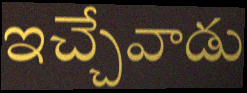
ఇచ్చేవాడు